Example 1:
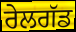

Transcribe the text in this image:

ਰੇਲਗੱਡ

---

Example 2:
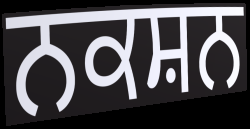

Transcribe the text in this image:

ਨਕਸ਼ਨ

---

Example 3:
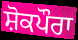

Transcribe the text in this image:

ਸ਼ੋਕਪੌਰਾ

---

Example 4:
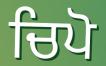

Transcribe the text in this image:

ਚਿਪੋ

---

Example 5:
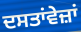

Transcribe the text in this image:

ਦਸਤਾਂਵੇਜ਼ਾਂ